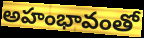
అహంభావంతో